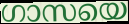
ഗാസയെ